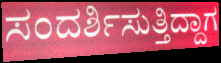
ಸಂದರ್ಶಿಸುತ್ತಿದ್ದಾಗ